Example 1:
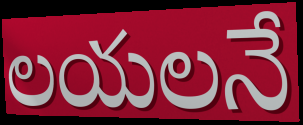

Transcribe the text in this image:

లయలనే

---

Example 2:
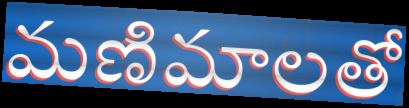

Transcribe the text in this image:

మణిమాలతో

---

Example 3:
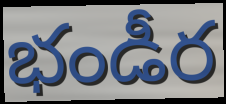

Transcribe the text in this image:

భండీర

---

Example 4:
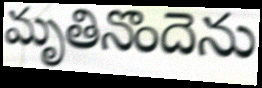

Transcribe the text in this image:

మృతినొందెను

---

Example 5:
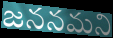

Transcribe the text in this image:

జననమని